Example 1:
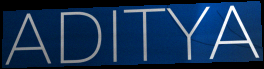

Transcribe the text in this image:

ADITYA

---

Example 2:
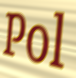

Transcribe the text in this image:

Pol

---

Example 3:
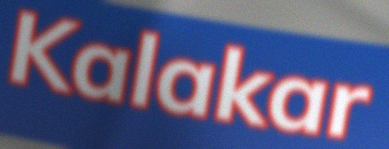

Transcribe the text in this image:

Kalakar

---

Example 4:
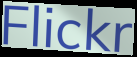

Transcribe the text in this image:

Flickr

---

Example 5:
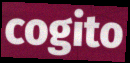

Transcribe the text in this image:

cogito